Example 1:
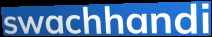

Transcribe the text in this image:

swachhandi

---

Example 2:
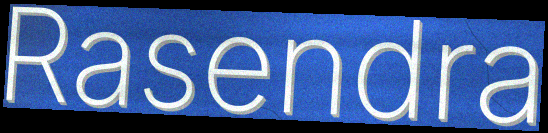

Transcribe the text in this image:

Rasendra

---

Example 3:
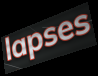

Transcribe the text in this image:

lapses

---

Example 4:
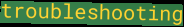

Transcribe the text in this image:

troubleshooting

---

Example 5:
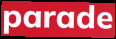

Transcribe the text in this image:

parade